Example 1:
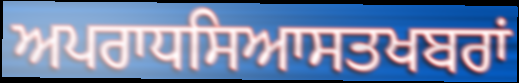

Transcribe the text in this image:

ਅਪਰਾਧਸਿਆਸਤਖਬਰਾਂ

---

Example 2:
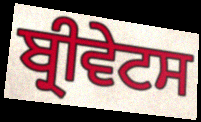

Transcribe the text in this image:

ਬ੍ਰੀਵੇਟਸ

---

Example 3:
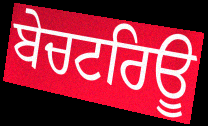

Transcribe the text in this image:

ਬੇਚਟਰਿਊ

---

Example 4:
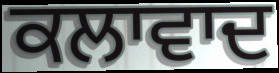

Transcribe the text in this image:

ਕਲਾਵਾਦ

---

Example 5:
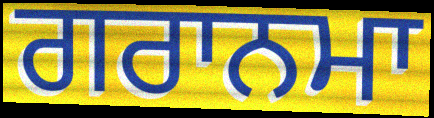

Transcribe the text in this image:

ਗਰਾਨਮਾ